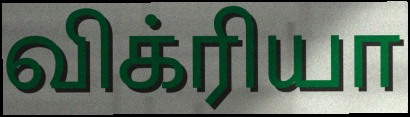
விக்ரியா